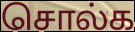
சொல்க